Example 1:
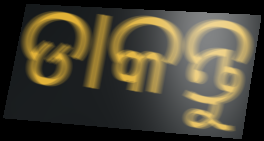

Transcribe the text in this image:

ଡାକନ୍ତୁ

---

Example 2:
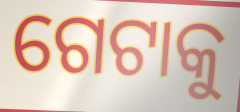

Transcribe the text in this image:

ଗେଟାକୁ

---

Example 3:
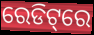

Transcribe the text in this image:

ରେଡିଟ୍‌ରେ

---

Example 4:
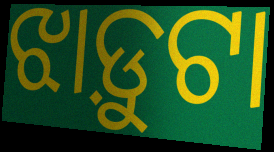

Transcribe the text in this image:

ଝାଡ଼ୁଟା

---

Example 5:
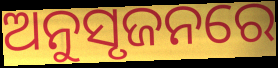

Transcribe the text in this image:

ଅନୁସୃଜନରେ